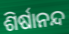
ଶିର୍ଷାନନ୍ଦ